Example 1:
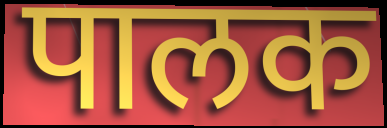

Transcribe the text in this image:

पालक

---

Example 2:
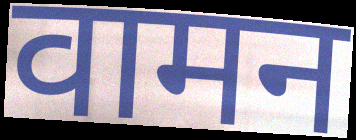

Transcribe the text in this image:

वामन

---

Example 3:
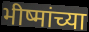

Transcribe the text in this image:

भीष्मांच्या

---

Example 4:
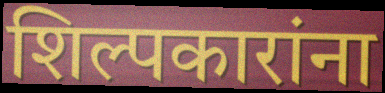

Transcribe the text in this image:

शिल्पकारांना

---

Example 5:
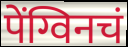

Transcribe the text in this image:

पेंग्विनचं